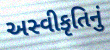
અસ્વીકૃતિનું